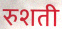
रुशती